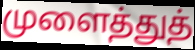
முளைத்துத்